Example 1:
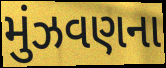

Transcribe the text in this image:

મુંઝવણના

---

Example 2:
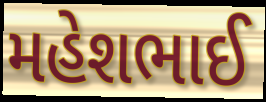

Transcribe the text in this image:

મહેશભાઈ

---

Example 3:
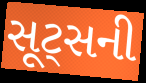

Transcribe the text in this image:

સૂટ્સની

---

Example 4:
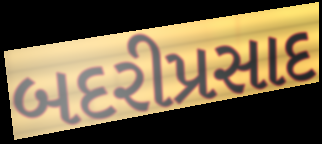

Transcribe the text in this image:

બદરીપ્રસાદ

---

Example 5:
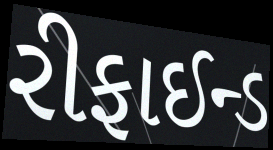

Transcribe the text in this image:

રીફાઈન્ડ